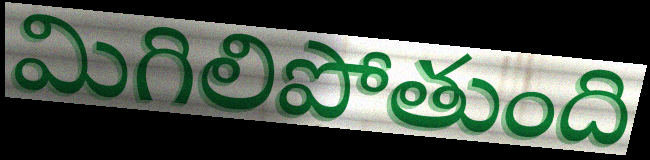
మిగిలిపోతుంది